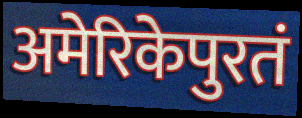
अमेरिकेपुरतं